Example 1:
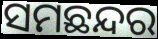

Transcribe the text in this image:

ସମଛନ୍ଦର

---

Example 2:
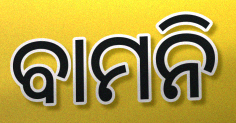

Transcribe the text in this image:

ବାମନି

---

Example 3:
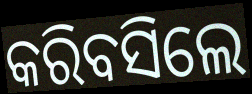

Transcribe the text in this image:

କରିବସିଲେ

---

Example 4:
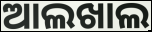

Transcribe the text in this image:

ଆଲଖାଲ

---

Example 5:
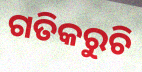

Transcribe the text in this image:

ଗତିକରୁଚି